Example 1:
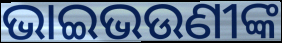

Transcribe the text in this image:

ଭାଇଭଉଣୀଙ୍କ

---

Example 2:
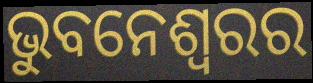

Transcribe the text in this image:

ଭୁବନେଶ୍ୱରର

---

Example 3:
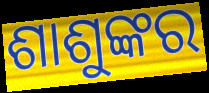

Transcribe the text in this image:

ଶାଶୁଙ୍କର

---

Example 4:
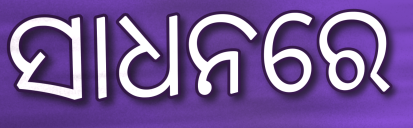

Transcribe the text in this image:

ସାଧନରେ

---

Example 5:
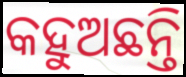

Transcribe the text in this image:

କହୁଅଛନ୍ତି